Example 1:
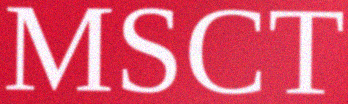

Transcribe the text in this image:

MSCT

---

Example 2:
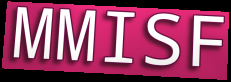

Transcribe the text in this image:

MMISF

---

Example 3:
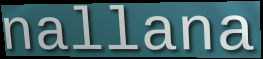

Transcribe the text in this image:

nallana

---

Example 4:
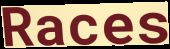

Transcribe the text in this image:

Races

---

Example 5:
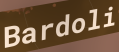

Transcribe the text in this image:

Bardoli